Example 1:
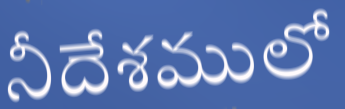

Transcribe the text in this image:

నీదేశములో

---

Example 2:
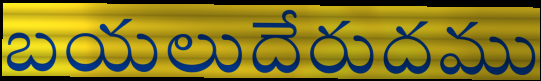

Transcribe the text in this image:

బయలుదేరుదము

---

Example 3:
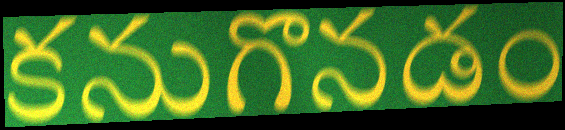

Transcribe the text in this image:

కనుగొనడం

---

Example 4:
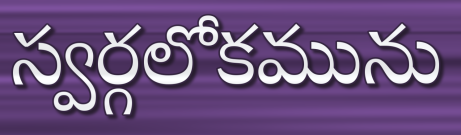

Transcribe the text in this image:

స్వర్గలోకమును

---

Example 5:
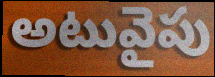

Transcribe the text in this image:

అటువైపు